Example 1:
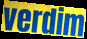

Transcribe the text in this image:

verdim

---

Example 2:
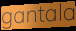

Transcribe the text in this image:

gantala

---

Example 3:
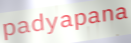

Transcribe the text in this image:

padyapana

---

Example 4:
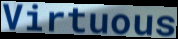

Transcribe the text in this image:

Virtuous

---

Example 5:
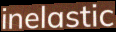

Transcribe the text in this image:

inelastic